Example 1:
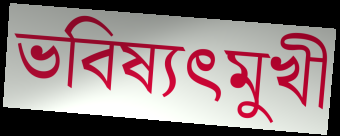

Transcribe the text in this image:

ভবিষ্যৎমুখী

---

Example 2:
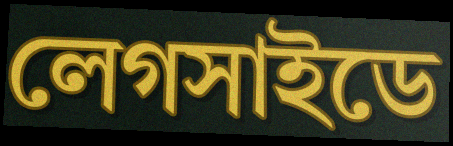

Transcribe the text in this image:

লেগসাইডে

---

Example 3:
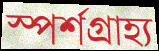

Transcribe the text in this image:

স্পর্শগ্রাহ্য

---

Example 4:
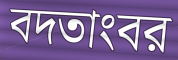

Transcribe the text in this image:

বদতাংবর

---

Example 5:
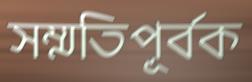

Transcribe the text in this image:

সম্মতিপূর্বক